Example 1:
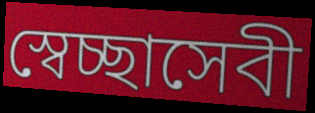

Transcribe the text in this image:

স্বেচ্ছাসেবী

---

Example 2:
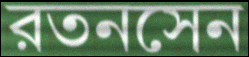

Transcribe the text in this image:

রতনসেন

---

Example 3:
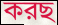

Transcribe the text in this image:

করছ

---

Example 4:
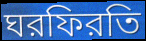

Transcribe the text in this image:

ঘরফিরতি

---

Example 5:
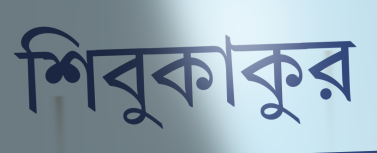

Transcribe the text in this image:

শিবুকাকুর